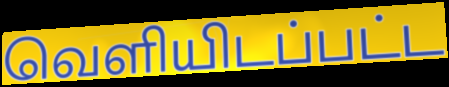
வெளியிடப்பட்ட